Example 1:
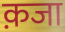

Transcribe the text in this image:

क़जा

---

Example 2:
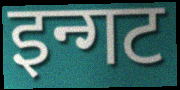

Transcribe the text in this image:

इन्गट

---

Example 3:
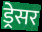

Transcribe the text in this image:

ड्रेसर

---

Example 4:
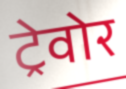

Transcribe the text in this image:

ट्रेवोर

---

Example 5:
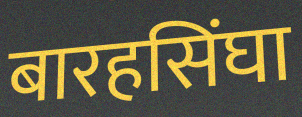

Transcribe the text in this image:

बारहसिंघा